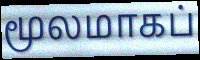
மூலமாகப்